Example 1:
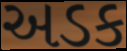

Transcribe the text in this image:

અડક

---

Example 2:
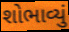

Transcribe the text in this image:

શોભાવ્યું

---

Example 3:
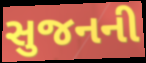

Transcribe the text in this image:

સુજનની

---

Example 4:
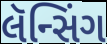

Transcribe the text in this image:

લૅન્સિંગ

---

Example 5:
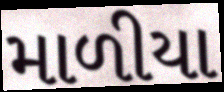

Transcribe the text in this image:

માળીયા